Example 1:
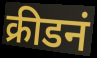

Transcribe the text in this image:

क्रीडनं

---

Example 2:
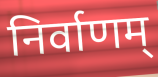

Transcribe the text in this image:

निर्वाणम्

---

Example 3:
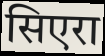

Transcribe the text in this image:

सिएरा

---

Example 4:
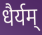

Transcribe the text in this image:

धैर्यम्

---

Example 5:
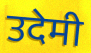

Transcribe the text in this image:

उदेमी